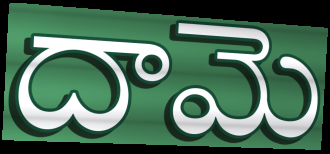
దామె